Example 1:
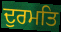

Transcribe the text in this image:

ਦੁਰਮਤਿ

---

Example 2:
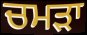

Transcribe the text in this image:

ਚਮੜਾ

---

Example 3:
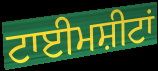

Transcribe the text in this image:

ਟਾਈਮਸ਼ੀਟਾਂ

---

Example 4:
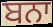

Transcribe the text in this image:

ਬਨਾ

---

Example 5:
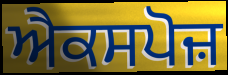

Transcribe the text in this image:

ਐਕਸਪੋਜ਼